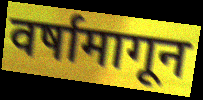
वर्षामागून